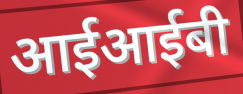
आईआईबी